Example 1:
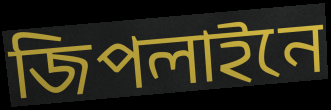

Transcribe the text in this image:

জিপলাইনে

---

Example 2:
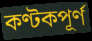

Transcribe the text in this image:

কণ্টকপূর্ণ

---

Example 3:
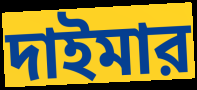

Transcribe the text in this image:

দাইমার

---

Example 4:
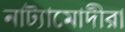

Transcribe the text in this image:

নাট্যামোদীরা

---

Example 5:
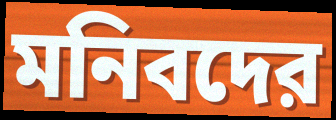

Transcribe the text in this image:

মনিবদের